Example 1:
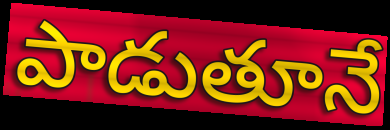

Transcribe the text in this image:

పాడుతూనే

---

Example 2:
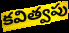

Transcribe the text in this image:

కవిత్వపు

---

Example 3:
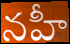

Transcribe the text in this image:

నహీ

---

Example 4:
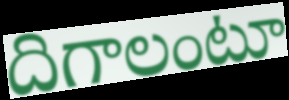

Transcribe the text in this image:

దిగాలంటూ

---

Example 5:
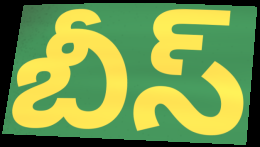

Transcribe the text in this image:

బీస్